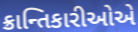
ક્રાન્તિકારીઓએ